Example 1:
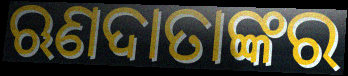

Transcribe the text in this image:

ଋଣଦାତାଙ୍କର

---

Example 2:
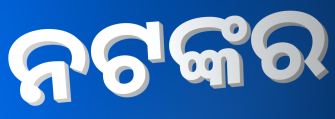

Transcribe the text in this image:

ନଟଙ୍କର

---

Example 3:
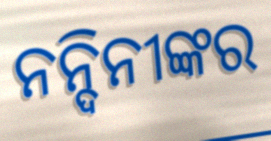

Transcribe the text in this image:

ନନ୍ଦିନୀଙ୍କର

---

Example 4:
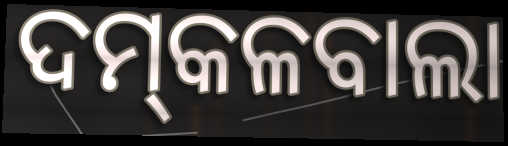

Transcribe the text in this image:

ଦମ୍‍କଳବାଲା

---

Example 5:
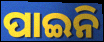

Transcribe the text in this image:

ପାଇନି